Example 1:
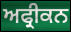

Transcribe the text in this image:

ਅਫ੍ਰੀਕਨ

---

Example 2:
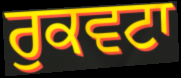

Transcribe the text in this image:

ਰੁਕਵਟਾ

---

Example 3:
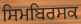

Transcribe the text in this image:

ਸਿਮਬਿਰਸਕ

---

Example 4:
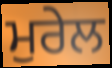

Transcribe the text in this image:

ਮੁਰੇਲ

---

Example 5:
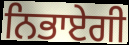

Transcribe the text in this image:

ਨਿਭਾਏਗੀ